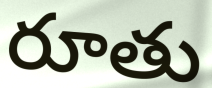
రూతు